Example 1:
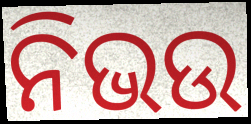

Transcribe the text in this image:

ନିଭଉ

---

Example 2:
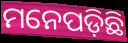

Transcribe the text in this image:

ମନେପଡ଼ିଛି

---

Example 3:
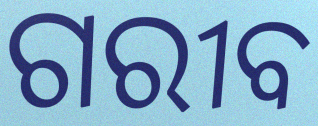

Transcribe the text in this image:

ଗରୀବ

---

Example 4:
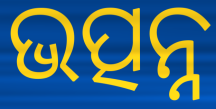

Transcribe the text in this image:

ଭତ୍ପନ୍ନ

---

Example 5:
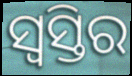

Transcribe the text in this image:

ସ୍ୱସ୍ତିର